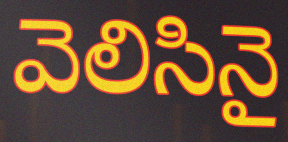
వెలిసినై